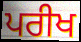
ਪਰੀਖ